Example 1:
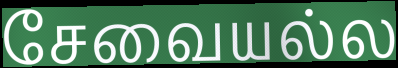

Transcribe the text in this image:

சேவையல்ல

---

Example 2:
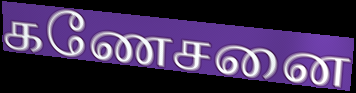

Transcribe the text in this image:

கணேசனை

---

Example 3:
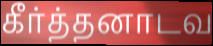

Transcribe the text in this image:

கீர்த்தனாடவ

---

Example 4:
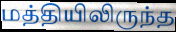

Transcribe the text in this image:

மத்தியிலிருந்த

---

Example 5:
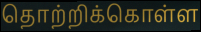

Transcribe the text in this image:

தொற்றிக்கொள்ள